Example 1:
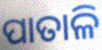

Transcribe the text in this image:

ପାତାଳି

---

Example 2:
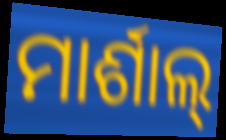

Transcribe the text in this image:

ମାର୍ଶାଲ୍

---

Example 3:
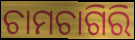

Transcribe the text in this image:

ଚାମଚାଗିରି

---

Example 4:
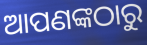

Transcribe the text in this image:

ଆପଣଙ୍କଠାରୁ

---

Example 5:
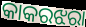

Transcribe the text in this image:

କାକରଝରା